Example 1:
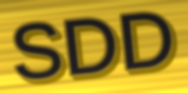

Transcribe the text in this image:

SDD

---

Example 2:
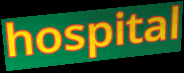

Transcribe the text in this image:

hospital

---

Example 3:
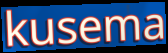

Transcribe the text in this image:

kusema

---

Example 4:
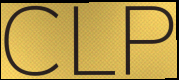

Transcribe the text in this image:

CLP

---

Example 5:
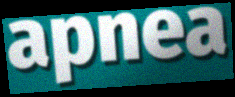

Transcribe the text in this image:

apnea